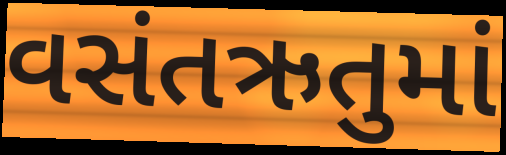
વસંતઋતુમાં